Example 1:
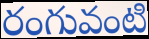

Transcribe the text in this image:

రంగువంటి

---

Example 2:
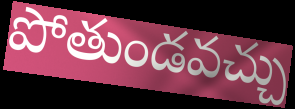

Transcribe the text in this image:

పోతుండవచ్చు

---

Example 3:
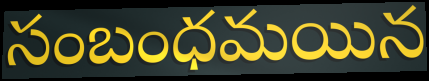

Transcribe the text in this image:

సంబంధమయిన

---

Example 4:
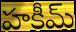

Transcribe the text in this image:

హకీమ్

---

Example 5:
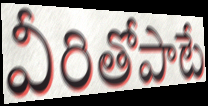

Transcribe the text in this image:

వీరితోపాటే